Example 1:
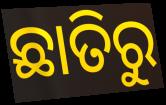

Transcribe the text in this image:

ଛାତିରୁ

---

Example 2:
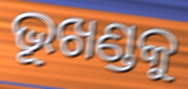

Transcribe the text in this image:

ଭୂଖଣ୍ଡକୁ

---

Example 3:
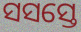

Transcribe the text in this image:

ସସସ୍ତେ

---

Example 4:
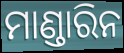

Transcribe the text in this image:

ମାଣ୍ଡାରିନ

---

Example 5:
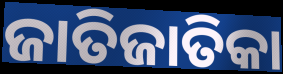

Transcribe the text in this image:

ଜାତିଜାତିକା